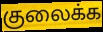
குலைக்க